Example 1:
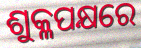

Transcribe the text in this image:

ଶୁକ୍ଳପକ୍ଷରେ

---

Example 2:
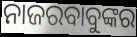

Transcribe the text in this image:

ନାଜରବାବୁଙ୍କର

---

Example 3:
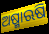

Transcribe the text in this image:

ଅଷ୍ମାଋଷି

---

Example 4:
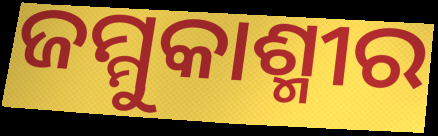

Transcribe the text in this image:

ଜମ୍ମୁକାଶ୍ମୀର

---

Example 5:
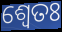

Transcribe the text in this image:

ଶ୍ଵେତଃ